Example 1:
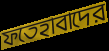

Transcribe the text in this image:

ফতেহাবাদের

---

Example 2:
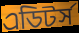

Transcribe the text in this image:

এডিটর্স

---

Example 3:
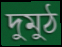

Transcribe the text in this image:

দুমুঠ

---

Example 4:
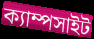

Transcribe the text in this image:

ক্যাম্পসাইট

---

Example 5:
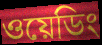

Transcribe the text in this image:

ওয়েডিং